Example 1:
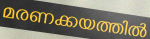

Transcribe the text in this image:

മരണക്കയത്തിൽ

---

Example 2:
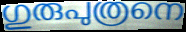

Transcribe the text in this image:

ഗുരുപുത്രനെ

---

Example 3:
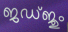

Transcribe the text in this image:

ജഡ്ജും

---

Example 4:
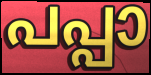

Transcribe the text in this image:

പപ്പാ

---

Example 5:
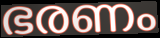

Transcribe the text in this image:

ഭരണം